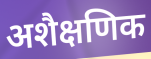
अशैक्षणिक